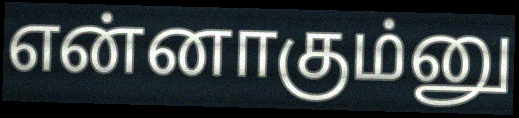
என்னாகும்னு